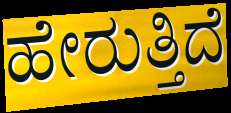
ಹೇರುತ್ತಿದೆ